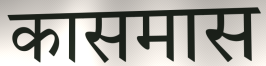
कासमास